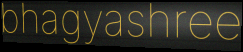
bhagyashree